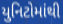
યુનિટોમાંથી